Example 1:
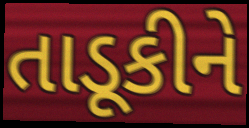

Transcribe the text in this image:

તાડૂકીને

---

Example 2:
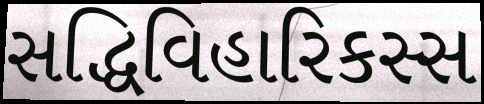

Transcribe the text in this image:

સદ્ધિવિહારિકસ્સ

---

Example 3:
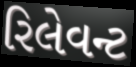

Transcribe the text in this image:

રિલેવન્ટ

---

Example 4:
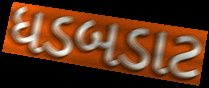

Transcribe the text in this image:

ધડબડાટ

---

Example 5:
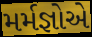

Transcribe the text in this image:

મર્મજ્ઞોએ